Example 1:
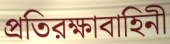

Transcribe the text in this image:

প্রতিরক্ষাবাহিনী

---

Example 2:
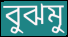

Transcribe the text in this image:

বুঝমু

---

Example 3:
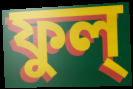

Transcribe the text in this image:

ফুল্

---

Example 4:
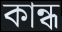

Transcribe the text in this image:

কান্ধ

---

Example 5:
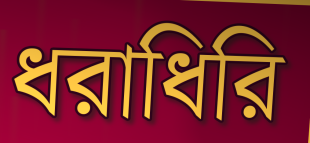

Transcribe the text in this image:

ধরাধিরি